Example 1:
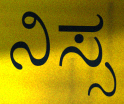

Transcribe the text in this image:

ನಿಸ್ಸ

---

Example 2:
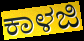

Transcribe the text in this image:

ಕಾಳಜಿ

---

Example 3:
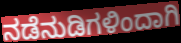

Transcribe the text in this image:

ನಡೆನುಡಿಗಳಿಂದಾಗಿ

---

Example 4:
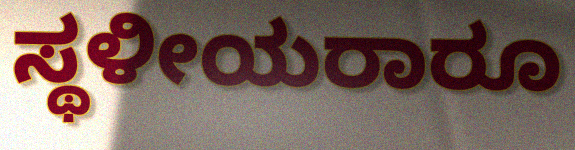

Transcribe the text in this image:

ಸ್ಥಳೀಯರಾರೂ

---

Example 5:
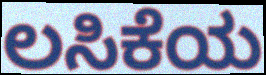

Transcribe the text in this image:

ಲಸಿಕೆಯ